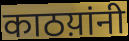
काठय़ांनी